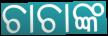
ଚାଚାଙ୍କ